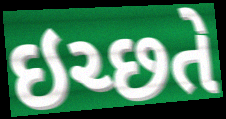
ઇચ્છતે